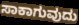
ಸಾಕಾಗುವುದು